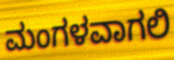
ಮಂಗಳವಾಗಲಿ